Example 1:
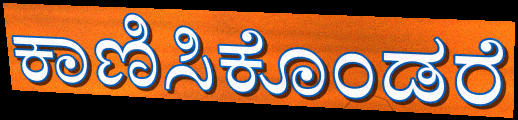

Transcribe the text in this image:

ಕಾಣಿಸಿಕೊಂಡರೆ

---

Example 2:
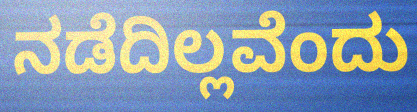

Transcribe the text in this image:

ನಡೆದಿಲ್ಲವೆಂದು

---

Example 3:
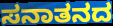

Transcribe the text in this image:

ಸನಾತನದ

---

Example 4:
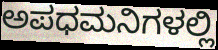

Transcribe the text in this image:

ಅಪಧಮನಿಗಳಲ್ಲಿ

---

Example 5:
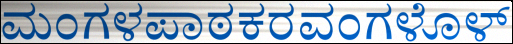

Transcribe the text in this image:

ಮಂಗಳಪಾಠಕರವಂಗಳೊಳ್